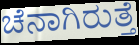
ಚೆನಾಗಿರುತ್ತೆ